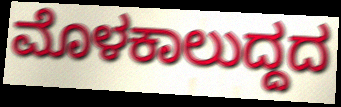
ಮೊಳಕಾಲುದ್ದದ